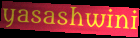
yasashwini